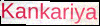
Kankariya